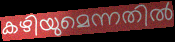
കഴിയുമെന്നതിൽ